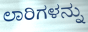
ಲಾರಿಗಳನ್ನು